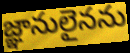
జ్ఞానులైనను